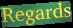
Regards